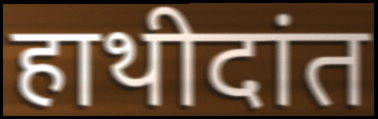
हाथीदांत